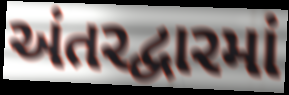
અંતરદ્વારમાં